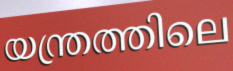
യന്ത്രത്തിലെ